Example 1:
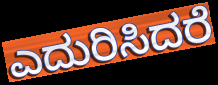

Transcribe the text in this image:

ಎದುರಿಸಿದರೆ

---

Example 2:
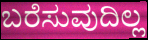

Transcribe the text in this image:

ಬರೆಸುವುದಿಲ್ಲ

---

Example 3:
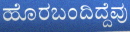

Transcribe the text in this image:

ಹೊರಬಂದಿದ್ದೆವು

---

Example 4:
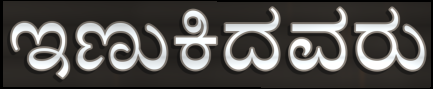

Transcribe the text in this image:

ಇಣುಕಿದವರು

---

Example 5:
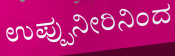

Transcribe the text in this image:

ಉಪ್ಪುನೀರಿನಿಂದ